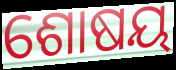
ଶୋଷୟ